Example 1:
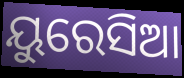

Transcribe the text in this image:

ୟୁରେସିଆ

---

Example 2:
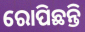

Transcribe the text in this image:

ରୋପିଛନ୍ତି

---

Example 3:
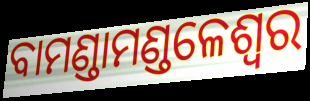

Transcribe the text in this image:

ବାମଣ୍ଡାମଣ୍ଡଳେଶ୍ୱର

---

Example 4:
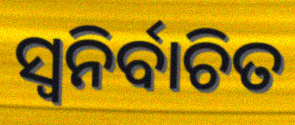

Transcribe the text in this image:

ସ୍ୱନିର୍ବାଚିତ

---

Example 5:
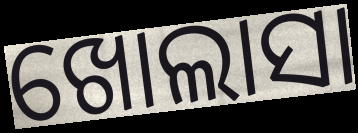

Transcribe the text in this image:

ଖୋଲାସା